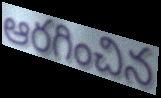
ఆరగించిన